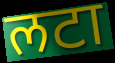
लटा